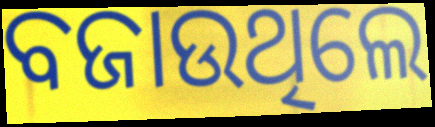
ବଜାଉଥିଲେ